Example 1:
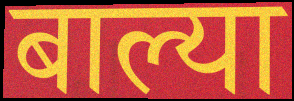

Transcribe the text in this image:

बाल्या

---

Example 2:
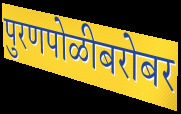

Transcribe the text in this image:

पुरणपोळीबरोबर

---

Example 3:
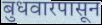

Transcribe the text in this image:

बुधवारपासून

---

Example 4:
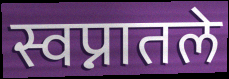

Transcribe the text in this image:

स्वप्नातले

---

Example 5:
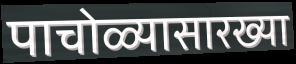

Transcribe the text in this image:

पाचोळ्यासारख्या